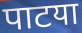
पाटया